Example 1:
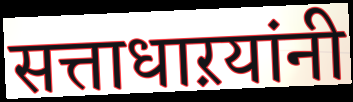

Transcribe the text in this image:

सत्ताधाऱयांनी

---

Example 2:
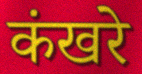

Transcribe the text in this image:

कंखरे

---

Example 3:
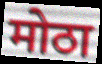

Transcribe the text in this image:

मोठा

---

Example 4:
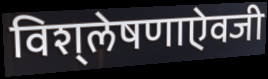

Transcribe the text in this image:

विश्लेषणाऐवजी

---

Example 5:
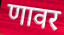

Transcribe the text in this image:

णावर